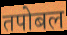
तपोबल